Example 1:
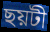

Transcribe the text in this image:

ছয়টী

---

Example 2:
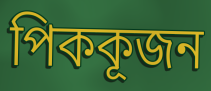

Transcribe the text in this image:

পিককূজন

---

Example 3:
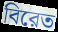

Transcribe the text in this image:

বিরেত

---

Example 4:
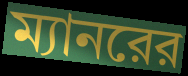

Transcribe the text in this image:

ম্যানরের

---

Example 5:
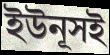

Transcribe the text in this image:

ইউনূসই